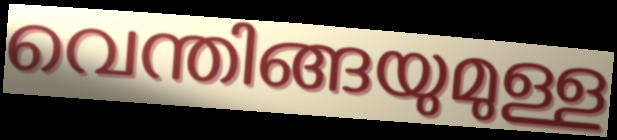
വെന്തിങ്ങയുമുള്ള